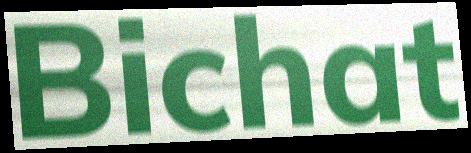
Bichat